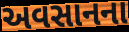
અવસાનના